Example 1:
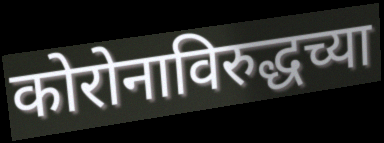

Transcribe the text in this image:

कोरोनाविरुद्धच्या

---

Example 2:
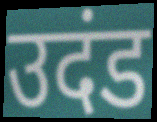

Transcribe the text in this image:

उदंड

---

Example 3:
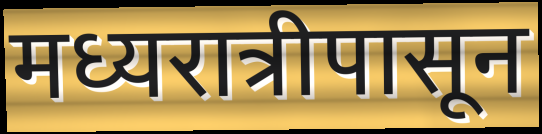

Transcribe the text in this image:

मध्यरात्रीपासून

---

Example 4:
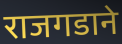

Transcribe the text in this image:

राजगडाने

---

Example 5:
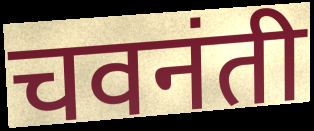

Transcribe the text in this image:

चवनंती